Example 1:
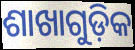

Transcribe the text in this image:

ଶାଖାଗୁଡ଼ିକ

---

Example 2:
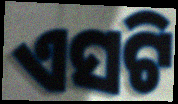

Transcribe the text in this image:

ଏସଟି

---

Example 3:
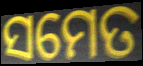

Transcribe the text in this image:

ସମେତ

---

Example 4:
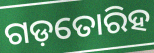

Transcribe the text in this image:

ଗଡ଼ତୋରିହ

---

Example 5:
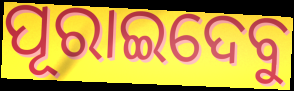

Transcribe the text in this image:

ପୂରାଇଦେବୁ